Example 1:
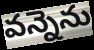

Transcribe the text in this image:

వన్నెను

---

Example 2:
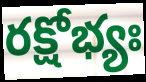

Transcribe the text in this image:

రక్షోభ్యః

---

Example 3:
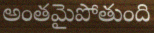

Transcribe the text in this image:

అంతమైపోతుంది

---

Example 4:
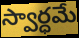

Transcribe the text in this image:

స్వార్ధమే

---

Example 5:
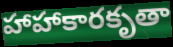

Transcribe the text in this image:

హాహాకారకృతా